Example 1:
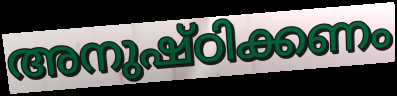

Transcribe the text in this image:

അനുഷ്ഠിക്കണം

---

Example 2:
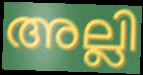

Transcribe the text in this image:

അല്ലി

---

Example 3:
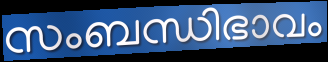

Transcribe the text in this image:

സംബന്ധിഭാവം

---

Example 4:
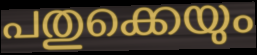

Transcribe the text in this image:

പതുക്കെയും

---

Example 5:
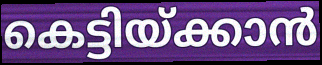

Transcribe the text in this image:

കെട്ടിയ്ക്കാൻ